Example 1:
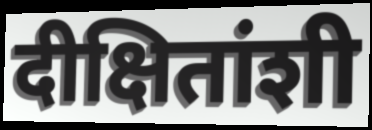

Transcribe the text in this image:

दीक्षितांशी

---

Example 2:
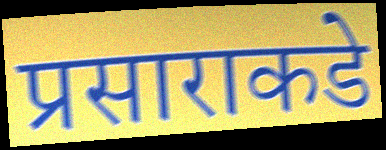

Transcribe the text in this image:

प्रसाराकडे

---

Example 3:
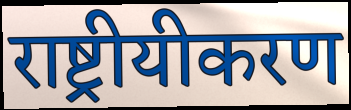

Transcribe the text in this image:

राष्ट्रीयीकरण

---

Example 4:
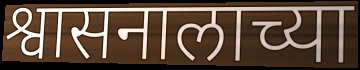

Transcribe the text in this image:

श्वासनालाच्या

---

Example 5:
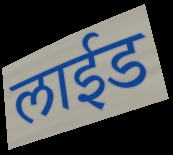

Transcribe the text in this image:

लाईड